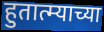
हुतात्म्याच्या